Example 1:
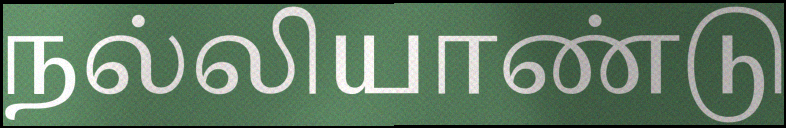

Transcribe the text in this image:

நல்லியாண்டு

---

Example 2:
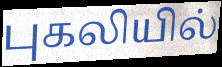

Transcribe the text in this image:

புகலியில்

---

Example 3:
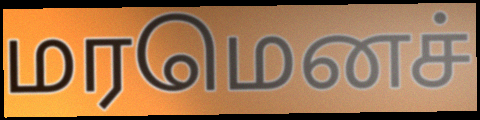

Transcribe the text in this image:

மரமெனச்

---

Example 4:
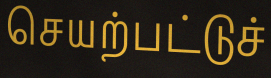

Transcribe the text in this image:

செயற்பட்டுச்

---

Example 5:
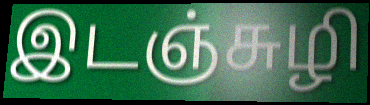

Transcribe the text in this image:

இடஞ்சுழி